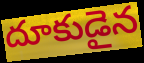
దూకుడైన